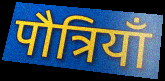
पौत्रियाँ